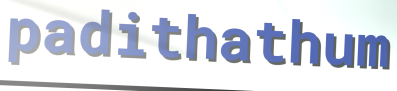
padithathum